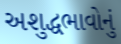
અશુદ્ધભાવોનું